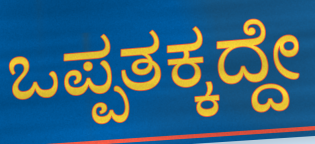
ಒಪ್ಪತಕ್ಕದ್ದೇ